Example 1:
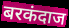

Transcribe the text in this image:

बरकंदाज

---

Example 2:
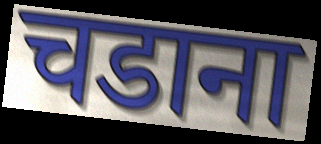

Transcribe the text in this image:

चडाना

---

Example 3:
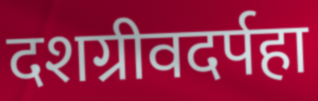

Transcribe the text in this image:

दशग्रीवदर्पहा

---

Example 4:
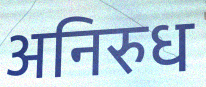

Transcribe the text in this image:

अनिरुध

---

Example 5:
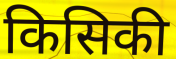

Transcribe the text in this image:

किसिकी